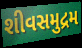
શીવસમુદ્રમ